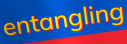
entangling